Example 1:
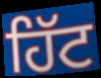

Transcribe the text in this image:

ਹਿੱਟ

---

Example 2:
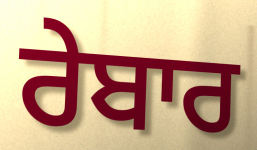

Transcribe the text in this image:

ਰੇਬਾਰ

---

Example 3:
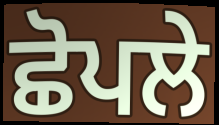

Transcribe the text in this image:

ਛੋਪਲੇ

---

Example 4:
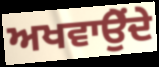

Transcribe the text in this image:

ਅਖਵਾਉੇਂਦੇ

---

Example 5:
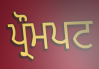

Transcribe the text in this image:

ਪ੍ਰੌਮਪਟ